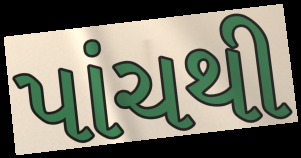
પાંચથી